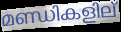
മണ്ഡികളില്